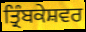
ਤ੍ਰਿੰਬਕੇਸ਼ਵਰ